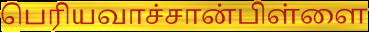
பெரியவாச்சான்பிள்ளை